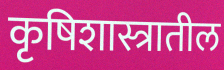
कृषिशास्त्रातील